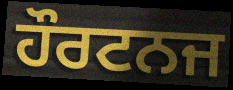
ਹੌਰਟਨਜ